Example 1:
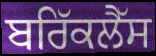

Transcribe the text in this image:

ਬਰਿੱਕਲੈੱਸ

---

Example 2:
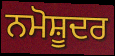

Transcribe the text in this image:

ਨਮੋਸ਼ੂਦਰ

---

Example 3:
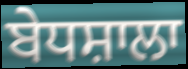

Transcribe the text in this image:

ਬੇਧਸ਼ਾਲਾ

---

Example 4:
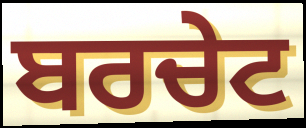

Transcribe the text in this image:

ਬਰਚੇਟ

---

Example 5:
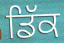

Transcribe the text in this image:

ਡਿੱਕ